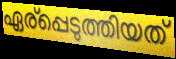
ഏര്പ്പെടുത്തിയത്